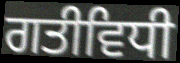
ਗਤੀਵਿਧੀ